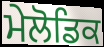
ਮੇਲੋਡਿਕ